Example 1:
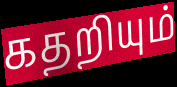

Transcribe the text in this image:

கதறியும்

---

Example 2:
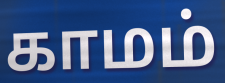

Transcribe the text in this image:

காமம்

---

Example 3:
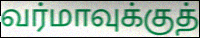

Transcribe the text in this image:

வர்மாவுக்குத்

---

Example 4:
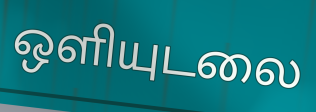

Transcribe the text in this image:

ஒளியுடலை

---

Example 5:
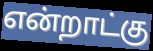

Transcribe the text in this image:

என்றாட்கு